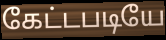
கேட்டபடியே